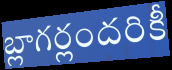
బ్లాగర్లందరికీ